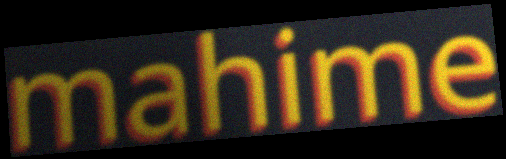
mahime